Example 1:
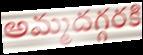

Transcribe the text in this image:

అమ్మదగ్గరకి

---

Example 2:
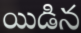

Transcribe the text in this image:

యిడిన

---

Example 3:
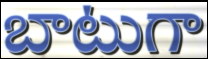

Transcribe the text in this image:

బాటుగా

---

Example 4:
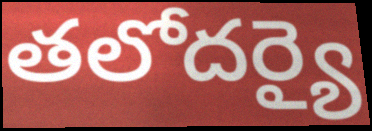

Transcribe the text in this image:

తలోదర్యై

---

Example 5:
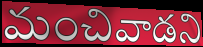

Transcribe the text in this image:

మంచివాడని